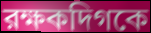
রক্ষকদিগকে